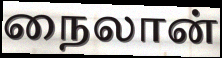
நைலான்